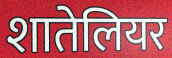
शातेलियर